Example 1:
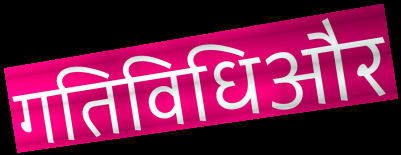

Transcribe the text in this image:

गतिविधिऔर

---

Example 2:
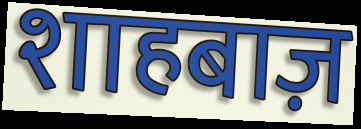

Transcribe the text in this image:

शाहबाज़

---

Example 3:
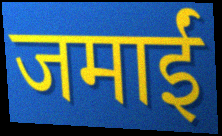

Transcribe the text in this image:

जमाईं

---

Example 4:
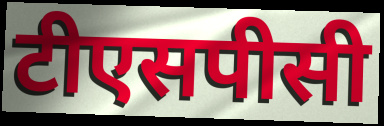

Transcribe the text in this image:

टीएसपीसी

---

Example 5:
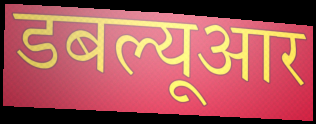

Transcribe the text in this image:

डबल्यूआर